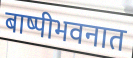
बाष्पीभवनात